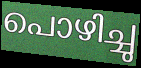
പൊഴിച്ചു